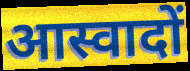
आस्वादों